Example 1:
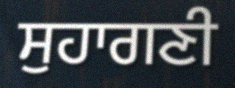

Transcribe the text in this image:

ਸੁਹਾਗਣੀ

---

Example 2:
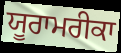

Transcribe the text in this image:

ਯੂਰਾਮਰੀਕਾ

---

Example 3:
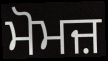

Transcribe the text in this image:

ਮੋਮਜ਼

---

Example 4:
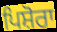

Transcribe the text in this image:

ਪਿਸ਼ੋਰਾ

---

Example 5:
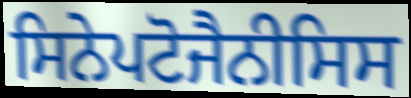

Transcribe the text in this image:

ਸਿਨੇਪਟੋਜੈਨੀਸਿਸ